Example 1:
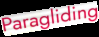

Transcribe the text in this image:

Paragliding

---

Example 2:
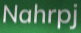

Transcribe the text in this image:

Nahrpj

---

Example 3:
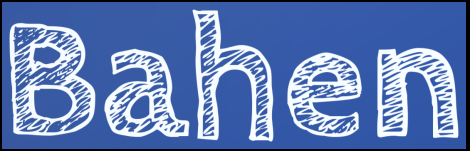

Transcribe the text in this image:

Bahen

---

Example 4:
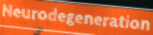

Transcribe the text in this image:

Neurodegeneration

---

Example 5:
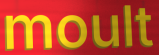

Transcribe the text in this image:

moult